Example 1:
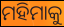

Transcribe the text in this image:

ମହିମାକୁ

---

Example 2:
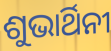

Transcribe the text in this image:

ଶୁଭାର୍ଥିନୀ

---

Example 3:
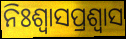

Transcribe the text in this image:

ନିଃଶ୍ୱାସପ୍ରଶ୍ୱାସ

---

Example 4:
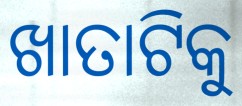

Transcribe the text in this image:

ଖାତାଟିକୁ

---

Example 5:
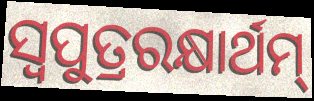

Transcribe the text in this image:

ସ୍ଵପୁତ୍ରରକ୍ଷାର୍ଥମ୍